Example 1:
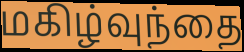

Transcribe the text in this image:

மகிழ்வுந்தை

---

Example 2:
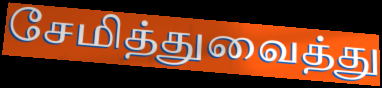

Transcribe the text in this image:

சேமித்துவைத்து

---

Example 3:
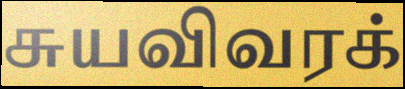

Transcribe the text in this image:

சுயவிவரக்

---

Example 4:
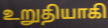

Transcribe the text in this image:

உறுதியாகி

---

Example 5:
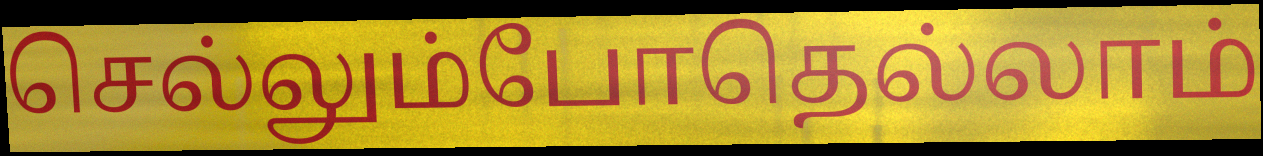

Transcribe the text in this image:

செல்லும்போதெல்லாம்